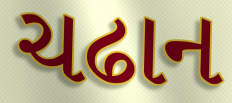
ચઢાન